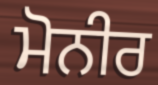
ਮੋਨੀਰ